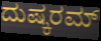
ದುಷ್ಕರಮ್